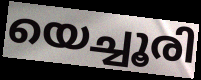
യെച്ചൂരി